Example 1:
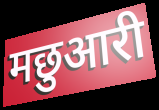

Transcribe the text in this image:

मछुआरी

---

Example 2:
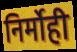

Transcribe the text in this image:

निर्मोही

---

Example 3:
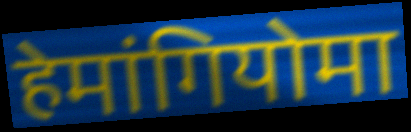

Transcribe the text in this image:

हेमांगियोमा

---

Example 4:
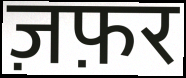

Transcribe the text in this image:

ज़फ़र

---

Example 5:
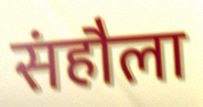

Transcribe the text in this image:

संहौला